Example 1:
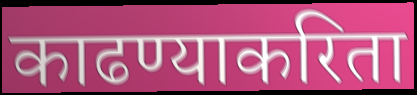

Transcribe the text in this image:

काढण्याकरिता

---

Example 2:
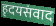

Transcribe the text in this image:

हृदयसंवाद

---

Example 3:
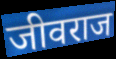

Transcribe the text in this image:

जीवराज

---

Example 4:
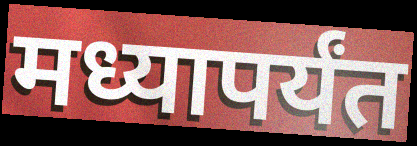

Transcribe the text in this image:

मध्यापर्यंत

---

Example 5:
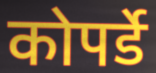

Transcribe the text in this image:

कोपर्डे